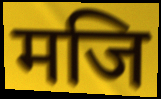
मजि